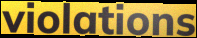
violations